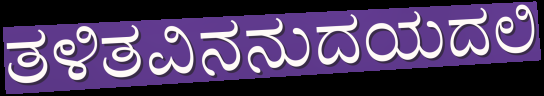
ತಳಿತವಿನನುದಯದಲಿ